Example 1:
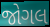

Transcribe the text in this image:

જોગલ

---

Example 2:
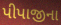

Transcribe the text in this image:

પીપાજીના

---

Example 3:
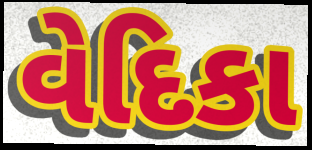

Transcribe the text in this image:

વેદિકા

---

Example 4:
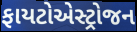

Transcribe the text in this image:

ફાયટોએસ્ટ્રોજન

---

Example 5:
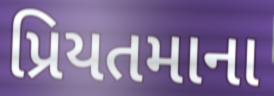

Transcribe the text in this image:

પ્રિયતમાના